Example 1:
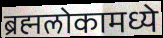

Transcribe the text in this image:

ब्रह्मलोकामध्ये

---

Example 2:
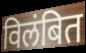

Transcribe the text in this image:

विलंबित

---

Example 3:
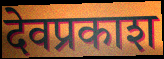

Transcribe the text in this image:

देवप्रकाश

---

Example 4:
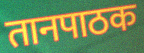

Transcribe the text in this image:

तानपाठक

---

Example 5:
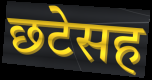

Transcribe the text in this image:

छटेसह